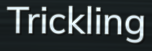
Trickling